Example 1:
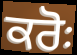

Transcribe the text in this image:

ਕਰੋਃ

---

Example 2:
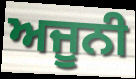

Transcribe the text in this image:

ਅਜੂਨੀ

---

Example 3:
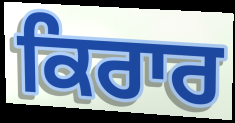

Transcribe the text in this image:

ਕਿਰਾਰ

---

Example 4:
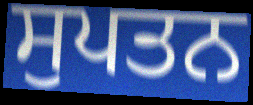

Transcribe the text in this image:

ਸੁਪਤਨ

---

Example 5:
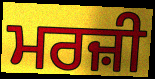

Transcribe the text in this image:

ਮਰਜ਼ੀ